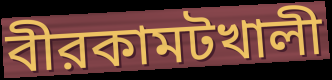
বীরকামটখালী